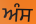
ਅੰਸ